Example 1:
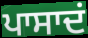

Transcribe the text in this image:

ਪਾਸਾਦਂ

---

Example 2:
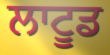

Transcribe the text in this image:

ਲਾਟੂਡ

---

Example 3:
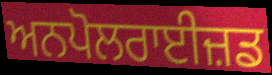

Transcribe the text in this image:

ਅਨਪੋਲਰਾਈਜ਼ਡ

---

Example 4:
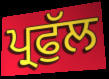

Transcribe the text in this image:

ਪ੍ਰਫੁੱਲ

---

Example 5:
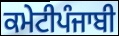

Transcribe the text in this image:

ਕਮੇਟੀਪੰਜਾਬੀ